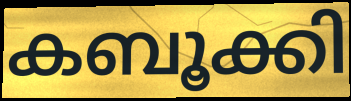
കബൂക്കി